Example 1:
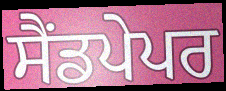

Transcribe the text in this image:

ਸੈਂਡਪੇਪਰ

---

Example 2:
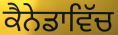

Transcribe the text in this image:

ਕੈਨੇਡਾਵਿੱਚ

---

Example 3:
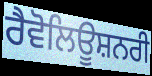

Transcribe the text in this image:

ਰੈਵੋਲਿਊਸ਼ਨਰੀ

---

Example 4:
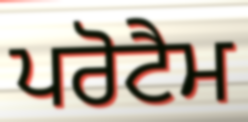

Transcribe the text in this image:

ਪਰੋਟੈਮ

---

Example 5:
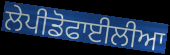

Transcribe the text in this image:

ਲੇਪੀਡੋਫਾਈਲੀਆ